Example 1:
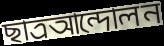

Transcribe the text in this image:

ছাত্রআন্দোলন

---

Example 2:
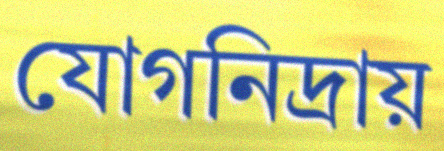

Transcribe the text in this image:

যোগনিদ্রায়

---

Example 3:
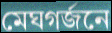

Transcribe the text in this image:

মেঘগর্জনে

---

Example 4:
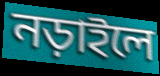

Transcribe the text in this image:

নড়াইলে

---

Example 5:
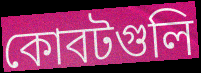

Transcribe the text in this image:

কোবটগুলি